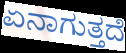
ಏನಾಗುತ್ತದೆ